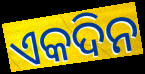
ଏକଦିନ